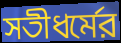
সতীধর্মের